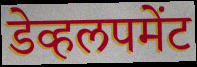
डेव्हलपमेंट